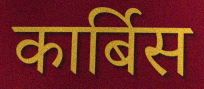
कार्बिस